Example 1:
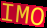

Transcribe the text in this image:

IMO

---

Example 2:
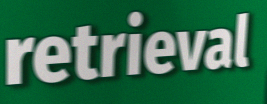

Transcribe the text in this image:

retrieval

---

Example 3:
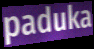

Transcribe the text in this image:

paduka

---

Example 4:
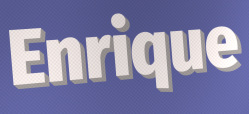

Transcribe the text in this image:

Enrique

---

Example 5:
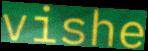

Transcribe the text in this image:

vishe